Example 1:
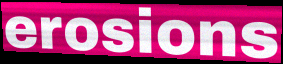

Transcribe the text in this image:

erosions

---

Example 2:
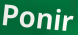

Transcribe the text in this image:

Ponir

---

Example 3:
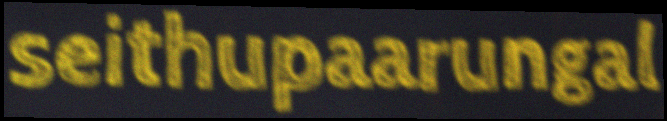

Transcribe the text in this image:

seithupaarungal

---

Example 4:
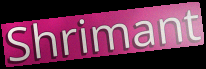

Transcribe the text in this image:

Shrimant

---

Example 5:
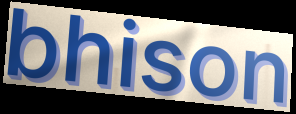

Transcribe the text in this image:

bhison